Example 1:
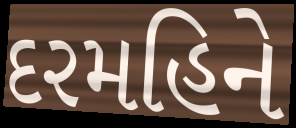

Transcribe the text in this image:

દરમહિને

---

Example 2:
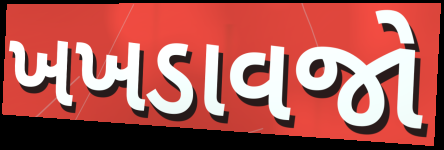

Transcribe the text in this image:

ખખડાવજો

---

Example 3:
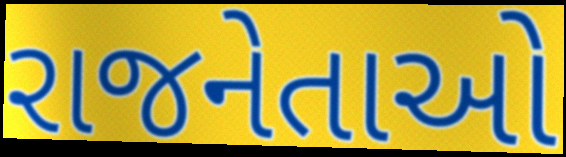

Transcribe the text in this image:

રાજનેતાઓ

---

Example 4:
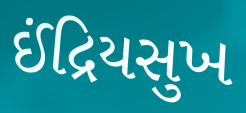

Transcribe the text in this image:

ઈંદ્રિયસુખ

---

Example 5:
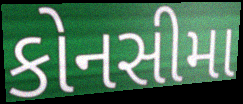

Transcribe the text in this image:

કોનસીમા